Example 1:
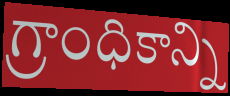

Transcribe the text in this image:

గ్రాంధికాన్ని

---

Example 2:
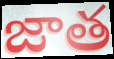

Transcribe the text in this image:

జాత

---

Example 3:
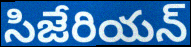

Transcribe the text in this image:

సిజేరియన్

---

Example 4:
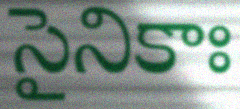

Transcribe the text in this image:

సైనికాః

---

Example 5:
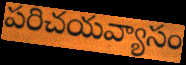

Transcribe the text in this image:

పరిచయవ్యాసం